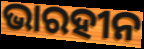
ଭାରହୀନ